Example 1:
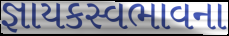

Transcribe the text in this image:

જ્ઞાયકસ્વભાવના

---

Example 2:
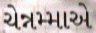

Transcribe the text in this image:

ચેન્નમ્માએ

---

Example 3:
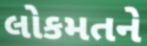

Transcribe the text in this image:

લોકમતને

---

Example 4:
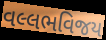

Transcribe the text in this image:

વલ્લભવિજય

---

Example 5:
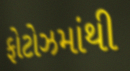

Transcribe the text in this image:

ફોટોઝમાંથી